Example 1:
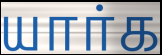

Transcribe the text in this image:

யார்க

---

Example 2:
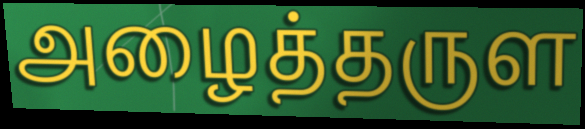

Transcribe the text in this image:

அழைத்தருள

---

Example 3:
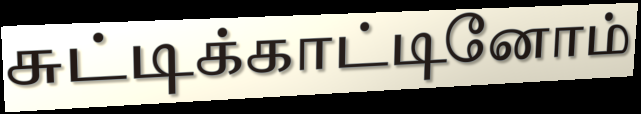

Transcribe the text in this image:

சுட்டிக்காட்டினோம்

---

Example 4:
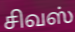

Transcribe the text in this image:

சிவஸ்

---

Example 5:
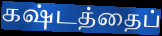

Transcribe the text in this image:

கஷ்டத்தைப்